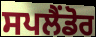
ਸਪਲੈਂਡੋਰ